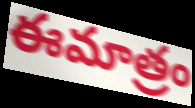
ఈమాత్రం